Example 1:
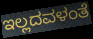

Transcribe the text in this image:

ಇಲ್ಲದವಳಂತೆ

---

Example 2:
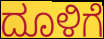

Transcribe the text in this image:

ದೂಳಿಗೆ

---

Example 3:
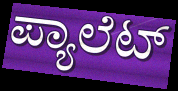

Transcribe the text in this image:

ಪ್ಯಾಲೆಟ್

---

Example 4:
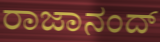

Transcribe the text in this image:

ರಾಜಾನಂದ್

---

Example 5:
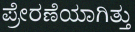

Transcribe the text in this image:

ಪ್ರೇರಣೆಯಾಗಿತ್ತು